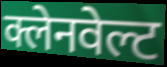
क्लेनवेल्ट